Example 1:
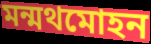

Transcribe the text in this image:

মন্মথমোহন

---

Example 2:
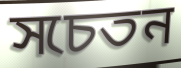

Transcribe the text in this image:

সচেতন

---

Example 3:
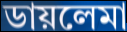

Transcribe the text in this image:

ডায়লেমা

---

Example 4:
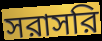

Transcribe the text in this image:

সরাসরি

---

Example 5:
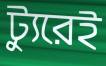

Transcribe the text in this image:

ট্যুরেই